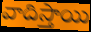
వాదిస్తాయి